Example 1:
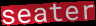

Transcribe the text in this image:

seater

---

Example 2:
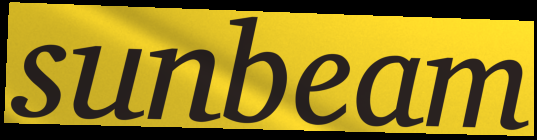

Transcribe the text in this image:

sunbeam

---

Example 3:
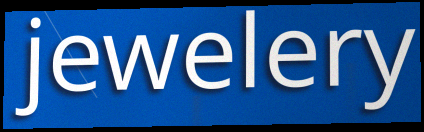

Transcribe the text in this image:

jewelery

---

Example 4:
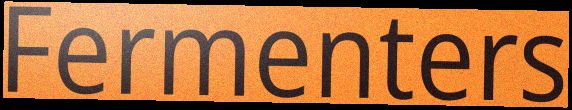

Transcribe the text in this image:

Fermenters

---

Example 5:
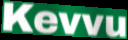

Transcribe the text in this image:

Kevvu